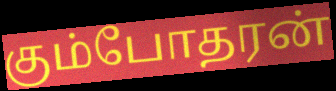
கும்போதரன்